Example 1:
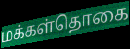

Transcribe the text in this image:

மக்கள்தொகை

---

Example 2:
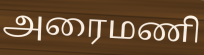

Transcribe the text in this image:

அரைமணி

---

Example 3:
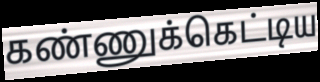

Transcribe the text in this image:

கண்ணுக்கெட்டிய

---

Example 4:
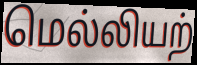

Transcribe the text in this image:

மெல்லியற்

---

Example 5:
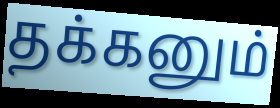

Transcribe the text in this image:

தக்கனும்